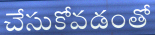
చేసుకోవడంతో